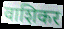
वाशिकर